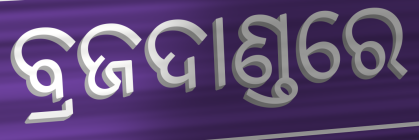
ବ୍ରଜଦାଣ୍ଡରେ